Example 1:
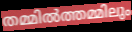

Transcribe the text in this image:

തമ്മിൽത്തമ്മിലും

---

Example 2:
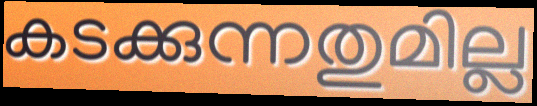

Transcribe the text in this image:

കടക്കുന്നതുമില്ല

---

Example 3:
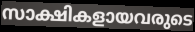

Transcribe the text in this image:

സാക്ഷികളായവരുടെ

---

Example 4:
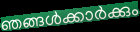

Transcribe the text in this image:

ഞങ്ങൾക്കാർക്കും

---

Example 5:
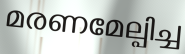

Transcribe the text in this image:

മരണമേല്പിച്ച